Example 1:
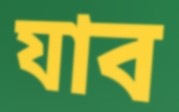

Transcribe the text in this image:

যাব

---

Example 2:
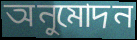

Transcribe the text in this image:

অনুমোদন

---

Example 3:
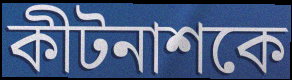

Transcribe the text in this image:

কীটনাশকে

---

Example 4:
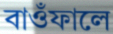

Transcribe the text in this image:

বাওঁফালে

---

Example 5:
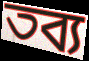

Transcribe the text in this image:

তব্য